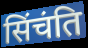
सिंचंति